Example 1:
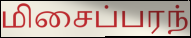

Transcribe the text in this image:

மிசைப்பரந்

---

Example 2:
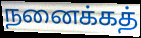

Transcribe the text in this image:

நனைக்கத்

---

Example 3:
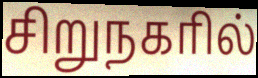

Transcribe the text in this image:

சிறுநகரில்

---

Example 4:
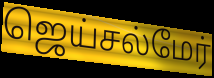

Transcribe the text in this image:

ஜெய்சல்மேர்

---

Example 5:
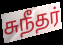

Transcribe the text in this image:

சுநீதர்